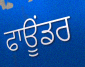
ਫਾਊਂਡਰ